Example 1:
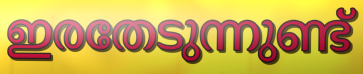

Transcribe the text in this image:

ഇരതേടുന്നുണ്ട്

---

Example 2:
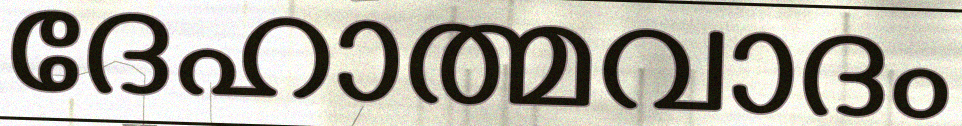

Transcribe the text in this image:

ദേഹാത്മവാദം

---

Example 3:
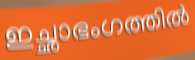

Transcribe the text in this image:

ഇച്ഛാഭംഗത്തിൽ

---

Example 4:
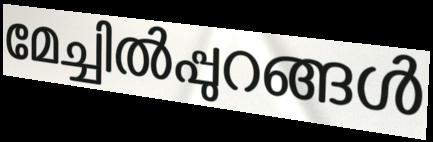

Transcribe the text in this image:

മേച്ചിൽപ്പുറങ്ങൾ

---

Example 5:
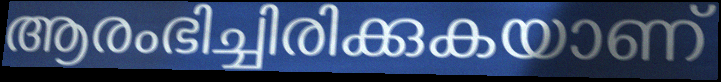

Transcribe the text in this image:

ആരംഭിച്ചിരിക്കുകയാണ്